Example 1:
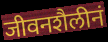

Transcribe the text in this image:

जीवनशैलीनं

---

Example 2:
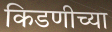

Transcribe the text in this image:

किडणीच्या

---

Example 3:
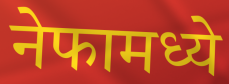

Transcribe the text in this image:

नेफामध्ये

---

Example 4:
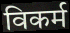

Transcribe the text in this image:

विकर्म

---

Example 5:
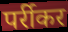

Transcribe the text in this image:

पर्रीकर